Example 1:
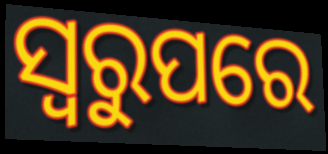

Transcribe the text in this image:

ସ୍ୱରୁପରେ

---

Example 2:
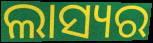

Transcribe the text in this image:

ଲାସ୍ୟର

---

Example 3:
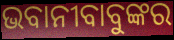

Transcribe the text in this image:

ଭବାନୀବାବୁଙ୍କର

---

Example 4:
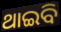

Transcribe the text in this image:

ଥାଇବି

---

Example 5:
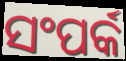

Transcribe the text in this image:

ସଂପର୍କ